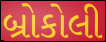
બ્રોકોલી